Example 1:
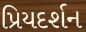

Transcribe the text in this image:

પ્રિયદર્શન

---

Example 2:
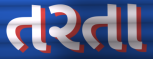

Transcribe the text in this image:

તરતા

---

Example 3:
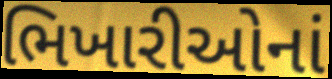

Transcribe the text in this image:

ભિખારીઓનાં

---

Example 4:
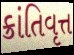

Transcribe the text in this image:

ક્રાંતિવૃત્ત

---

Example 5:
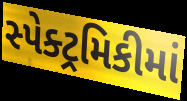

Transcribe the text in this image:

સ્પેક્ટ્રમિકીમાં